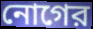
নোগের